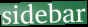
sidebar